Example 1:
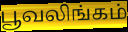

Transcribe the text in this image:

பூவலிங்கம்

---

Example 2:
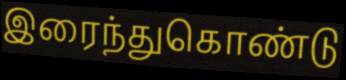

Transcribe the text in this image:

இரைந்துகொண்டு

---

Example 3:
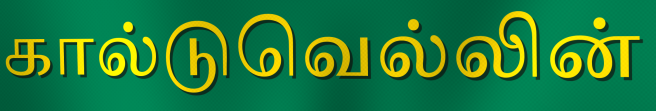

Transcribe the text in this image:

கால்டுவெல்லின்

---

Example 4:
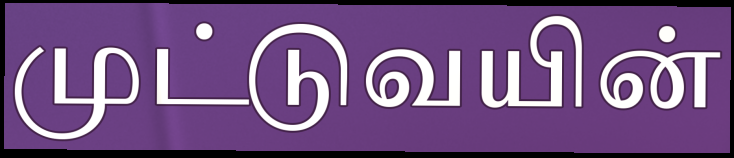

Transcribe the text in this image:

முட்டுவயின்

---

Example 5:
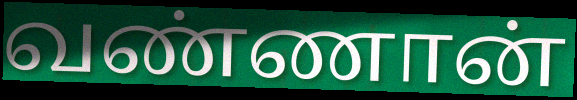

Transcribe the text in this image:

வண்ணான்